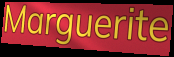
Marguerite